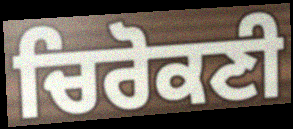
ਚਿਰੋਕਣੀ